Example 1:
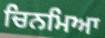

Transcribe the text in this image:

ਚਿਨਮਿਆ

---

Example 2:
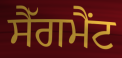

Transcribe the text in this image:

ਸੈੱਗਮੈਂਟ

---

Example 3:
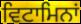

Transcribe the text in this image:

ਵਿਟਾਮਿਨਾਂ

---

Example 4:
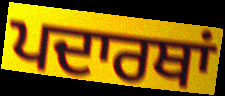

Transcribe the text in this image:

ਪਦਾਰਥਾਂ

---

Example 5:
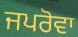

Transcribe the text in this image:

ਜਪਰੋਵਾ